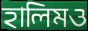
হালিমও